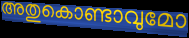
അതുകൊണ്ടാവുമോ